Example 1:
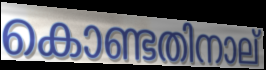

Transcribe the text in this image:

കൊണ്ടതിനാല്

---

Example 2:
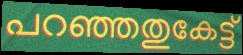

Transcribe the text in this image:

പറഞ്ഞതുകേട്ട്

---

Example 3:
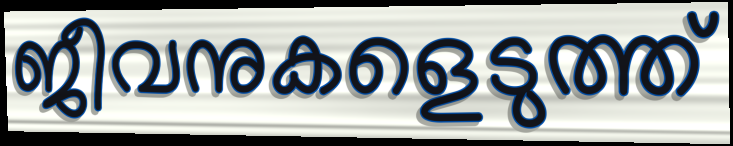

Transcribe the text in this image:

ജീവനുകളെടുത്ത്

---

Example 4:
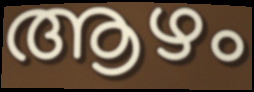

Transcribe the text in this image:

ആഴം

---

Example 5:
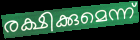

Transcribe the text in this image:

രക്ഷിക്കുമെന്ന്